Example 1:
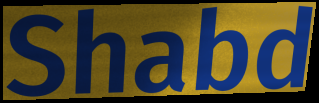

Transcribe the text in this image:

Shabd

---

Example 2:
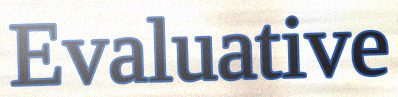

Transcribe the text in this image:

Evaluative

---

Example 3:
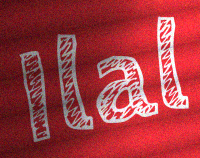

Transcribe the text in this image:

Ilal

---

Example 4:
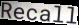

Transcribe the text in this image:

Recall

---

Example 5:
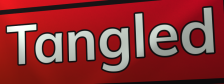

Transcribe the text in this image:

Tangled